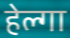
हेल्गा